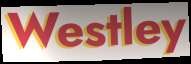
Westley